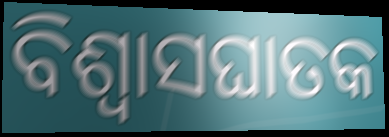
ବିଶ୍ୱାସଘାତକ